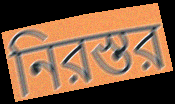
নিরস্তর